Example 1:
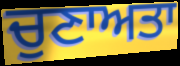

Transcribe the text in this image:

ਚੁਣਾਅਤਾ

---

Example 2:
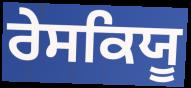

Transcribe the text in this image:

ਰੇਸਕਿਯੂ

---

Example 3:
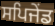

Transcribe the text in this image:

ਸਪਿਜੇਂਡ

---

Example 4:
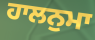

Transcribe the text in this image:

ਹਾਲਨੁਮਾ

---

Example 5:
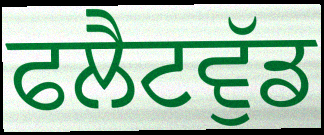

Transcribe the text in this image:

ਫਲੈਟਵੁੱਡ